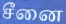
சீனை